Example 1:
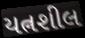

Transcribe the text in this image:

યત્નશીલ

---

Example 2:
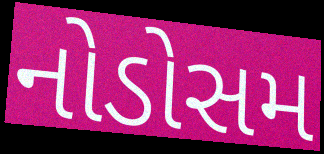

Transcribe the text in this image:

નોડોસમ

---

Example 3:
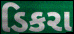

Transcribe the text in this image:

ડિકરા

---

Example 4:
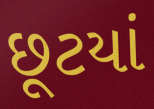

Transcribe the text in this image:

છૂટયાં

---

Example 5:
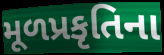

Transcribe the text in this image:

મૂળપ્રકૃતિના